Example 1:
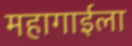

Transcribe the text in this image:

महागाईला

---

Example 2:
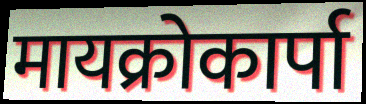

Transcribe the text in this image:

मायक्रोकार्पा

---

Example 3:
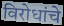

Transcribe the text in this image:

विरोधांचे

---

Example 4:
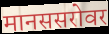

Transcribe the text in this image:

मानससरोवर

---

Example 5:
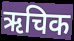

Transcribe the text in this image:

ऋचिक